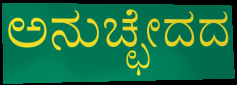
ಅನುಚ್ಛೇದದ